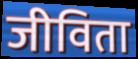
जीविता